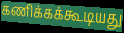
கணிக்கக்கூடியது